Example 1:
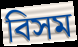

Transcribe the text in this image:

বিসম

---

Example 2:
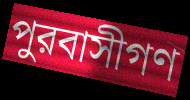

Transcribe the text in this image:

পুরবাসীগণ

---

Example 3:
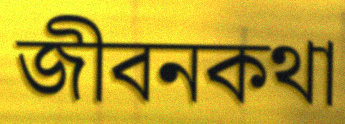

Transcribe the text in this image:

জীবনকথা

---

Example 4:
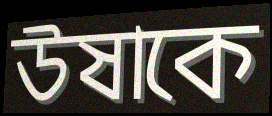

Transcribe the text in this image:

উষাকে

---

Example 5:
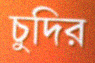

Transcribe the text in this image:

চুদির